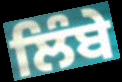
ਲਿੰਬੇ